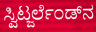
ಸ್ವಿಟ್ಜರ್ಲೆಂಡ್‌ನ